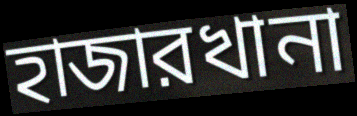
হাজারখানা